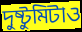
দুষ্টুমিটাও